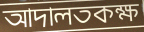
আদালতকক্ষ